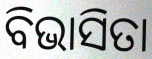
ବିଭାସିତା